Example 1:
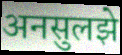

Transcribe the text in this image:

अनसुलझे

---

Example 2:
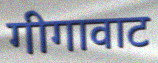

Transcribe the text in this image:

गीगावाट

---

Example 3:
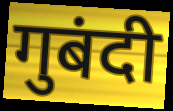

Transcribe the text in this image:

गुबंदी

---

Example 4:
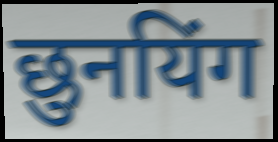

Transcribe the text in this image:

छुनयिंग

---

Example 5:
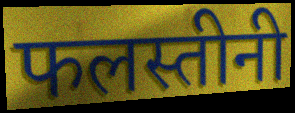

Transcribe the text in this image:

फलस्तीनी